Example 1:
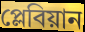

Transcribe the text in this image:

প্লেবিয়ান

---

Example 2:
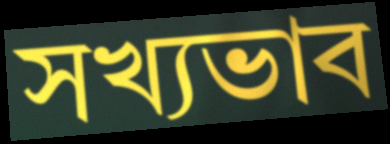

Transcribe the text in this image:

সখ্যভাব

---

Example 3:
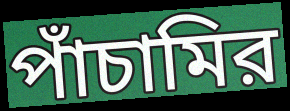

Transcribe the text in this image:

পাঁচামির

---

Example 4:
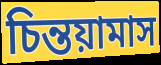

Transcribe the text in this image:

চিন্তয়ামাস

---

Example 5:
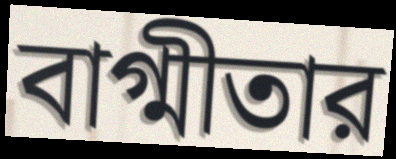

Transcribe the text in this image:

বাগ্মীতার